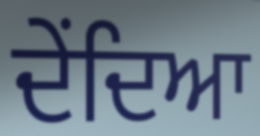
ਦੇਂਦਿਆ